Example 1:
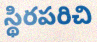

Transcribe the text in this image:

స్థిరపరిచి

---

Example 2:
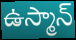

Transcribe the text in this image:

ఉస్మాన్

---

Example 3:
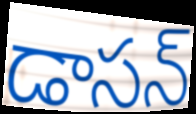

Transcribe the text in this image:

డాసన్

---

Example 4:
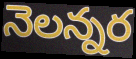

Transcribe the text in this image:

నెలన్నర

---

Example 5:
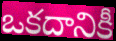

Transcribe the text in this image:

ఒకదానికీ